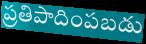
ప్రతిపాదింపబడు